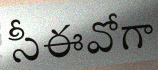
సీఈవోగా